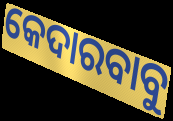
କେଦାରବାବୁ